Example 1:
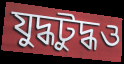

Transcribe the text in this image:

যুদ্ধটুদ্ধও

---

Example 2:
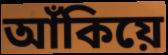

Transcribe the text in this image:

আঁকিয়ে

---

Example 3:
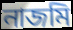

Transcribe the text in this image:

নাজমি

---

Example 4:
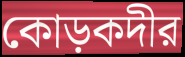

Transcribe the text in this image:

কোড়কদীর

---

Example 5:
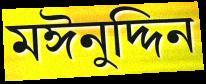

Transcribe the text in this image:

মঈনুদ্দিন